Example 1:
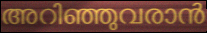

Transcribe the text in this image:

അറിഞ്ഞുവരാൻ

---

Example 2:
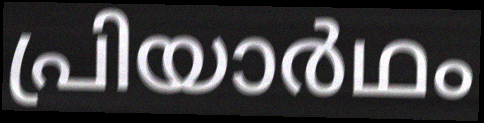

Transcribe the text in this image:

പ്രിയാർഥം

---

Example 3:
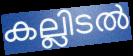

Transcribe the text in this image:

കല്ലിടൽ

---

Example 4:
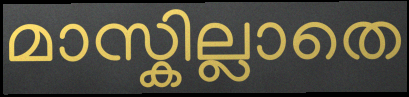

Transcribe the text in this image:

മാസ്കില്ലാതെ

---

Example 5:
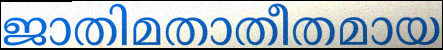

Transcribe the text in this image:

ജാതിമതാതീതമായ